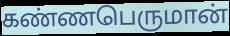
கண்ணபெருமான்